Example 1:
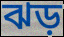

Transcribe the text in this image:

ঝড়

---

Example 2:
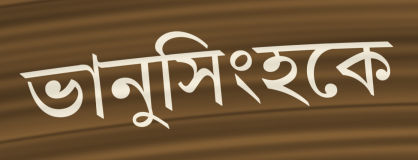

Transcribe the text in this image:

ভানুসিংহকে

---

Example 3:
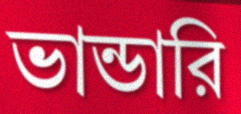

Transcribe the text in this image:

ভান্ডারি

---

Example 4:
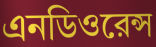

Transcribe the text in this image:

এনডিওরেন্স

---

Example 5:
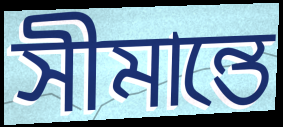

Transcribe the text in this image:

সীমান্তে